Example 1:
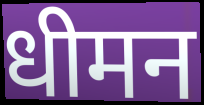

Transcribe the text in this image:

धीमन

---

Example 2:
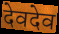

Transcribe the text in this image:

देवदेव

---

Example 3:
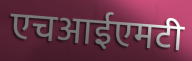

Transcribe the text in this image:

एचआईएमटी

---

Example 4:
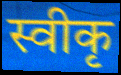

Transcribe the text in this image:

स्वीकृ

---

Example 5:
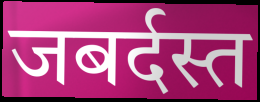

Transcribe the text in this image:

जबर्दस्त